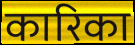
कारिका